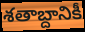
శతాబ్దానికీ